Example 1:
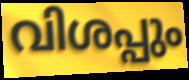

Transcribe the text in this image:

വിശപ്പും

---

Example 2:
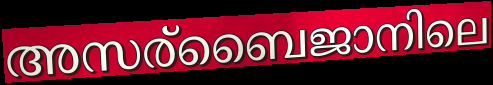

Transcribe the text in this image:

അസര്ബൈജാനിലെ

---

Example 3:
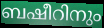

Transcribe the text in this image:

ബഷീറിനും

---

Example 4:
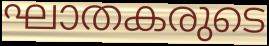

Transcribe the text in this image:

ഘാതകരുടെ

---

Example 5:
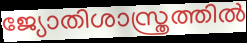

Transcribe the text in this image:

ജ്യോതിശാസ്ത്രത്തിൽ